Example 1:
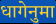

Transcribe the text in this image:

धागेनुमा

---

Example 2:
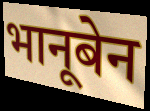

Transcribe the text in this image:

भानूबेन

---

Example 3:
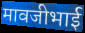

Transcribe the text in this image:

मावजीभाई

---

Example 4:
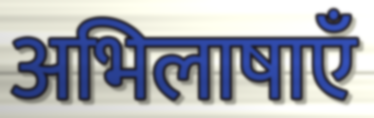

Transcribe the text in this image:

अभिलाषाएँ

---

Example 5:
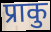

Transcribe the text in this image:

प्राकु